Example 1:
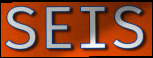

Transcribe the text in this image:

SEIS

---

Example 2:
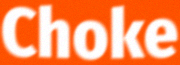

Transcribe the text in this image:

Choke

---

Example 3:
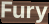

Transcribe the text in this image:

Fury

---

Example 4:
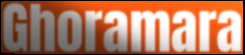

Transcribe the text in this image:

Ghoramara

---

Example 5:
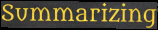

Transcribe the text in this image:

Summarizing